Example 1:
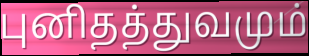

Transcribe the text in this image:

புனிதத்துவமும்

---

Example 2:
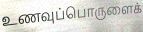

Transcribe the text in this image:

உணவுப்பொருளைக்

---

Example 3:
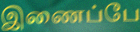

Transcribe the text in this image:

இணைப்பே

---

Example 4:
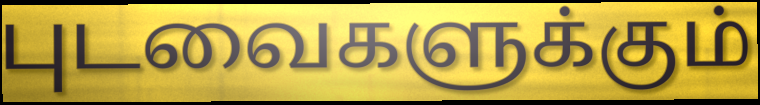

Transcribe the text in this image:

புடவைகளுக்கும்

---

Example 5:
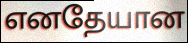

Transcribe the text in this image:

எனதேயான